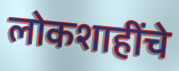
लोकशाहींचे